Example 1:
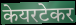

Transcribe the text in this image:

केयरटेकर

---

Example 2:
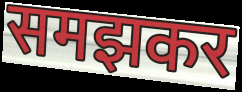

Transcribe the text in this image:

समझकर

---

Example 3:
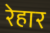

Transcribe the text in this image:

रेहार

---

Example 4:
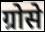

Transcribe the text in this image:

ग्रोसे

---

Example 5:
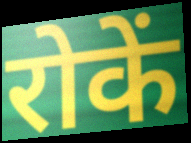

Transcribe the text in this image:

रोकें